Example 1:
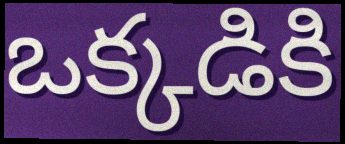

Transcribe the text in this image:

ఒక్కడికి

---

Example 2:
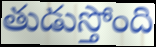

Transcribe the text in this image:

తుడుస్తోంది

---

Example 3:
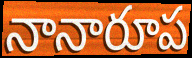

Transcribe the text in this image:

నానారూప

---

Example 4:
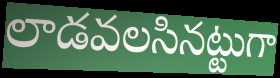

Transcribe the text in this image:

లాడవలసినట్టుగా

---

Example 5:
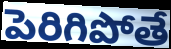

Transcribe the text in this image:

పెరిగిపోతే